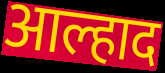
आल्हाद